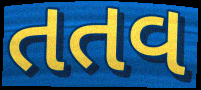
તતવ